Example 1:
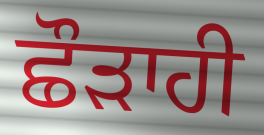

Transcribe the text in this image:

ਛੌੜਾਹੀ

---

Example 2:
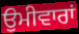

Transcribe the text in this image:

ਉਮੀਵਾਰਾਂ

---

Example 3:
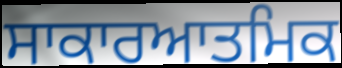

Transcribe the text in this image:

ਸਾਕਾਰਆਤਮਿਕ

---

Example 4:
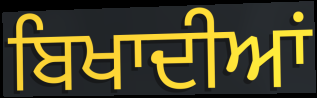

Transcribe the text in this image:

ਬਿਖਾਦੀਆਂ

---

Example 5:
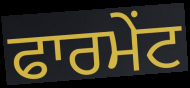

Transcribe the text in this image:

ਫਾਰਮੇਂਟ